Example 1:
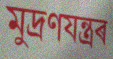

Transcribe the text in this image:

মুদ্ৰণযন্ত্ৰৰ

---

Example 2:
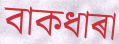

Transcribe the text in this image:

বাকধাৰা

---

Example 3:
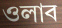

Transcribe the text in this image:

ওলাব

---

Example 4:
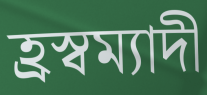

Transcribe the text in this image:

হ্ৰস্বম্যাদী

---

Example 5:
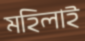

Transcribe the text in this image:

মহিলাই